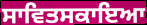
ਸਾਵਿਤਸਕਾਇਆ